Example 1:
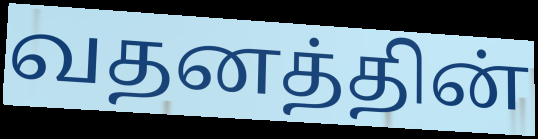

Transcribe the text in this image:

வதனத்தின்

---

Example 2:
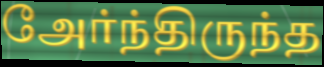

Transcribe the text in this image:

அேர்ந்திருந்த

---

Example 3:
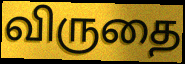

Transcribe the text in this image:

விருதை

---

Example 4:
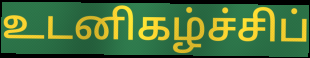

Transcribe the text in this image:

உடனிகழ்ச்சிப்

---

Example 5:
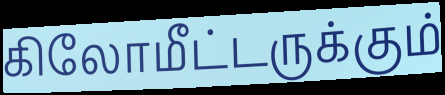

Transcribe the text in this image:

கிலோமீட்டருக்கும்